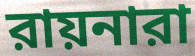
রায়নারা